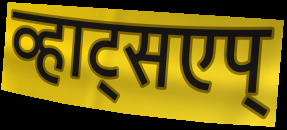
व्हाट्सएप्